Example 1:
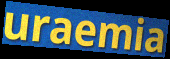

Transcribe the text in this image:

uraemia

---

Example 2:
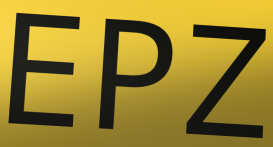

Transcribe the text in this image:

EPZ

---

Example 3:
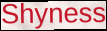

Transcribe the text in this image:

Shyness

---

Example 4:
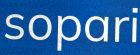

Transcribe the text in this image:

sopari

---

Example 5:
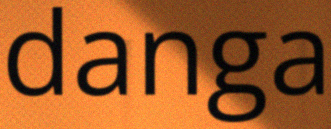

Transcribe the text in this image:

danga